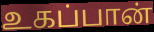
உகப்பான்